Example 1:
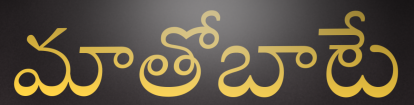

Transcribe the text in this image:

మాతోబాటే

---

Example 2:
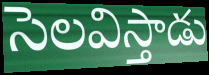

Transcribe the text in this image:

సెలవిస్తాడు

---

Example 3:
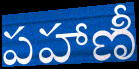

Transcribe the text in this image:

పహాణీ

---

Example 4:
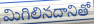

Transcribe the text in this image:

మిగిలినదానితో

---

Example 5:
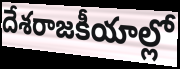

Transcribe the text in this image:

దేశరాజకీయాల్లో